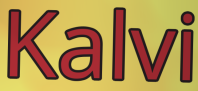
Kalvi